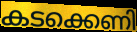
കടക്കെണി